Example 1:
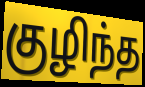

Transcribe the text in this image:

குழிந்த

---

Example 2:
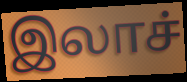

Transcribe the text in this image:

இலாச்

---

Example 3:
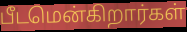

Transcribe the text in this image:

பீடமென்கிறார்கள்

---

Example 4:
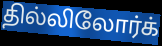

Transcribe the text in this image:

தில்லிலோர்க்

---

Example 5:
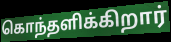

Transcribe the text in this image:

கொந்தளிக்கிறார்